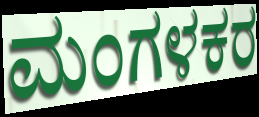
ಮಂಗಳಕರ